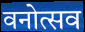
वनोत्सव